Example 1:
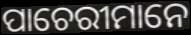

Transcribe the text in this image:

ପାଚେରୀମାନେ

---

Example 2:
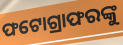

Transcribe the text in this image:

ଫଟୋଗ୍ରାଫରଙ୍କୁ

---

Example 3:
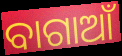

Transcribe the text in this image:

ବାଗାଆଁ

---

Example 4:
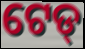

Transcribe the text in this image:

ଟେଡ୍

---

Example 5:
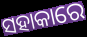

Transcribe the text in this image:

ସହାକାରେ